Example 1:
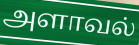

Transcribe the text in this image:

அளாவல்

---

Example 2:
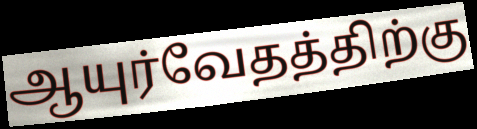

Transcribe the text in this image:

ஆயுர்வேதத்திற்கு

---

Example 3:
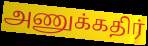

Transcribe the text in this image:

அணுக்கதிர்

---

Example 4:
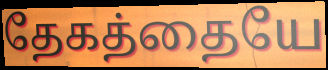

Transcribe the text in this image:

தேகத்தையே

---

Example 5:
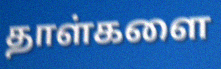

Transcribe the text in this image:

தாள்களை